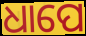
ଧାପେ